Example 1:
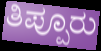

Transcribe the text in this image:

ತಿಪ್ಪೂರು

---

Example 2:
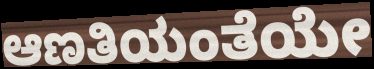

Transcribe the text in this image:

ಆಣತಿಯಂತೆಯೇ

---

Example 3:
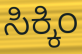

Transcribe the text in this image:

ಸಿಕ್ಕಿಂ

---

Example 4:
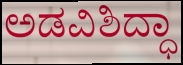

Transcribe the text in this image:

ಅಡವಿಶಿದ್ಧಾ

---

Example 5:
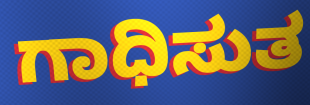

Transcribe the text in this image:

ಗಾಧಿಸುತ